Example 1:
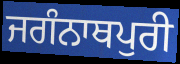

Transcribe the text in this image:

ਜਗੰਨਾਥਪੁਰੀ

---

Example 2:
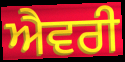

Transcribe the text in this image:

ਐਵਰੀ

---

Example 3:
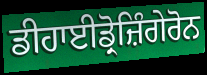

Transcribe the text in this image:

ਡੀਹਾਈਡ੍ਰੋਜ਼ਿੰਗੇਰੋਨ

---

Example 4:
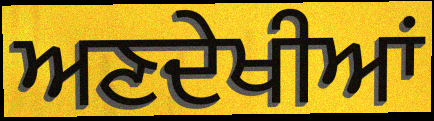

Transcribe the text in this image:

ਅਣਦੇਖੀਆਂ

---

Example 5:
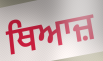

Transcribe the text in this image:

ਥਿਆਜ਼